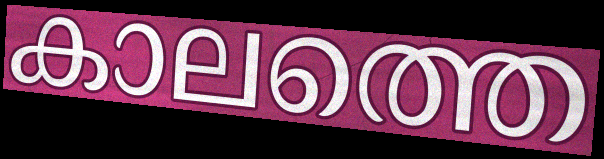
കാലത്തെ